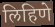
लिहिणे